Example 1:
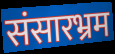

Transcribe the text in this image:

संसारभ्रम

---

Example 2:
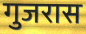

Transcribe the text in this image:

गुजरास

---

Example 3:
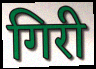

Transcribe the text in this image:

गिरी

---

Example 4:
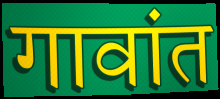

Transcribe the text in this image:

गावांत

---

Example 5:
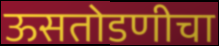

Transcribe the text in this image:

ऊसतोडणीचा